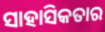
ସାହାସିକତାର